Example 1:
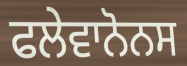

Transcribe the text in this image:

ਫਲੇਵਾਨੋਨਸ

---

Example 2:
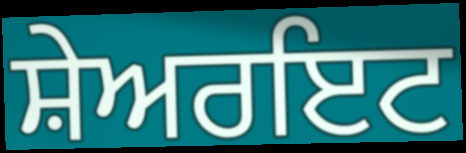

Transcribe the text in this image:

ਸ਼ੇਅਰਇਟ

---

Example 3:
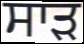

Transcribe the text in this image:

ਸਾਡ਼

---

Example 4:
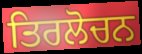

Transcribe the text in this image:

ਤਿਰਲੋਚਨ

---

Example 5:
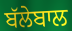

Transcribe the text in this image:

ਬੱਲੇਬਾਲ